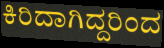
ಕಿರಿದಾಗಿದ್ದರಿಂದ